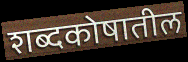
शब्दकोषातील